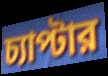
চ্যাপ্টার